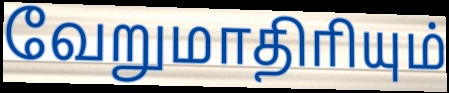
வேறுமாதிரியும்